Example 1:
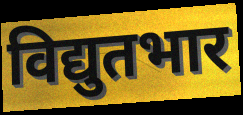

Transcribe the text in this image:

विद्युतभार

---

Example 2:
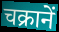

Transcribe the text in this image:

चक्रानें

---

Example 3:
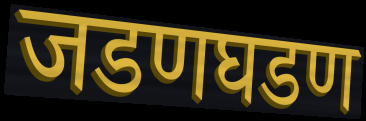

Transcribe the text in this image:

जडणघडण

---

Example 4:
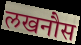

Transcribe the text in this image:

लखनौस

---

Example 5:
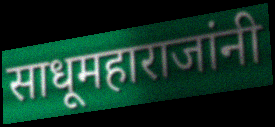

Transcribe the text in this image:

साधूमहाराजांनी